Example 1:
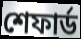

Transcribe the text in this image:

শেফার্ড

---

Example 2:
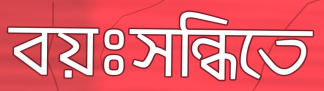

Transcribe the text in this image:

বয়ঃসন্ধিতে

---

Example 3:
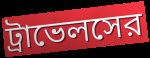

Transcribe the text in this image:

ট্রাভেলসের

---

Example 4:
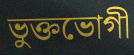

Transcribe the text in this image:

ভুক্তভোগী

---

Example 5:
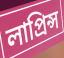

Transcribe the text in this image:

লাপ্রিন্স